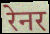
रेनर